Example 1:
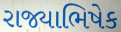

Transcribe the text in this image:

રાજ્યાભિષેક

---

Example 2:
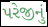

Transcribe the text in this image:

પરેજીનું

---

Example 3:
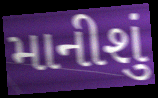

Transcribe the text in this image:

માનીશું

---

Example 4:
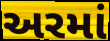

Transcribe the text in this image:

અરમાં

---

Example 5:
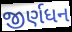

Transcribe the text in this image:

જીર્ણધન